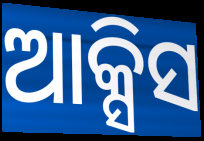
ଆକ୍ସିସ